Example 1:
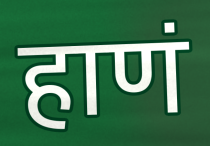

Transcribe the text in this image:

हाणं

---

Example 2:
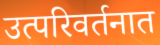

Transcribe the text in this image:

उत्परिवर्तनात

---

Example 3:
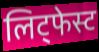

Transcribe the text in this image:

लिट्फेस्ट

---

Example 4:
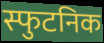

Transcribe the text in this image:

स्फुटनिक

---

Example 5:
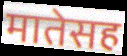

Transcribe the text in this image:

मातेसह